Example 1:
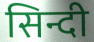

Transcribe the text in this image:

सिन्दी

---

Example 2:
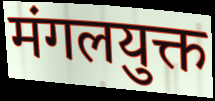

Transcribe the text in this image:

मंगलयुक्त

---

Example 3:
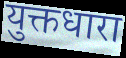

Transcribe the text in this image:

युक्तधारा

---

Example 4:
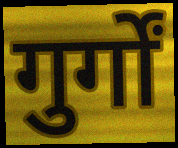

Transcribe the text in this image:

गुर्गों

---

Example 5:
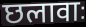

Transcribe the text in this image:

छलावाः